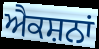
ਐਕਸ਼ਨਾਂ